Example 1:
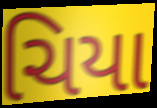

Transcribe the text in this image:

ચિયા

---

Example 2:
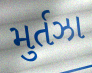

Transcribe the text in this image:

મુર્તઝા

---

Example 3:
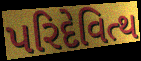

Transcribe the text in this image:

પરિદેવિત્થ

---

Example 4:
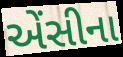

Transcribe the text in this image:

એંસીના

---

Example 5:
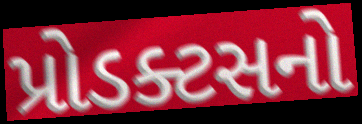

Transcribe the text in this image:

પ્રોડક્ટસનો